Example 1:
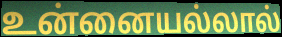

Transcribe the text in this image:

உன்னையல்லால்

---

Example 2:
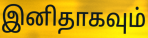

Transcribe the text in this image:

இனிதாகவும்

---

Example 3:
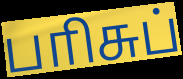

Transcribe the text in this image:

பரிசுப்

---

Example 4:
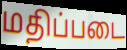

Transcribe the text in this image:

மதிப்படை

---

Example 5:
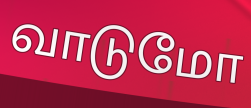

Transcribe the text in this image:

வாடுமோ